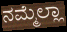
ನಮ್ಮೆಲ್ಲಾ